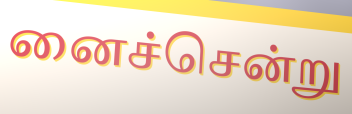
னைச்சென்று